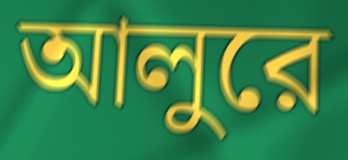
আলুরে